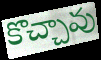
కొచ్చావు